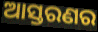
ଆସ୍ତରଣର